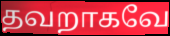
தவறாகவே